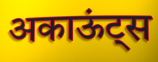
अकाऊंट्स